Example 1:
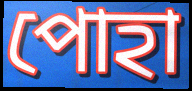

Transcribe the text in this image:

পোহা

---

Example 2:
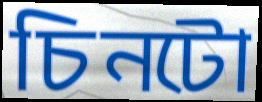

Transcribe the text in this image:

চিনটো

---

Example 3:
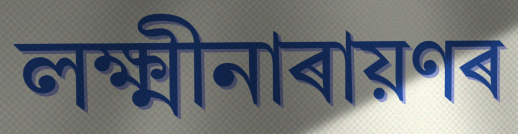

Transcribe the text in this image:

লক্ষ্মীনাৰায়ণৰ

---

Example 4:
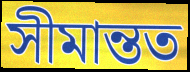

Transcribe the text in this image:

সীমান্তত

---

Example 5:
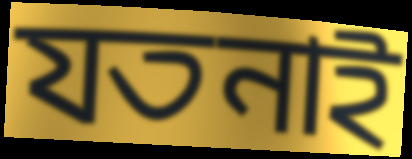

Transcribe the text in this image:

যতনাই